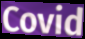
Covid